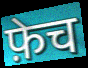
फ़ेच